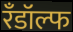
रँडॉल्फ